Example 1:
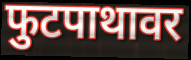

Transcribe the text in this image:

फुटपाथावर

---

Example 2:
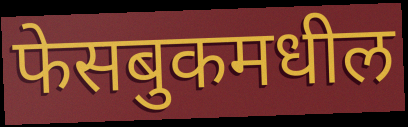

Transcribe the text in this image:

फेसबुकमधील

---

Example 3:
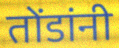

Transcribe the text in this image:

तोंडांनी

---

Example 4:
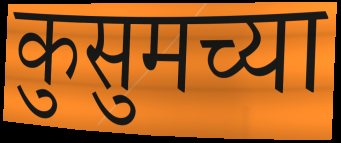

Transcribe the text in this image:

कुसुमच्या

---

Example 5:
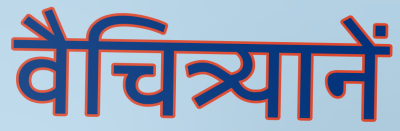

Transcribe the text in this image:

वैचित्र्यानें